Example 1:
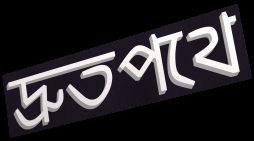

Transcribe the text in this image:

দ্রুতপথে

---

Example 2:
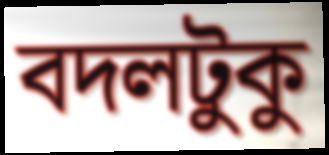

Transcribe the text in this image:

বদলটুকু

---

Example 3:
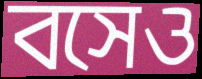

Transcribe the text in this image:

বসেও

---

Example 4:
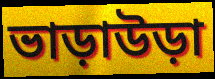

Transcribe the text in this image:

ভাড়াউড়া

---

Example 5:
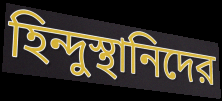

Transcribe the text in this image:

হিন্দুস্থানিদের